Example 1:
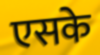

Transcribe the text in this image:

एसके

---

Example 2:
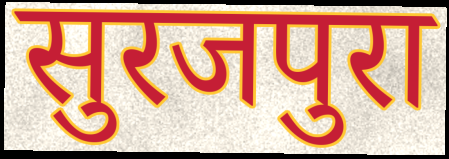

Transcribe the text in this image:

सुरजपुरा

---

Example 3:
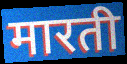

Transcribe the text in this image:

मारती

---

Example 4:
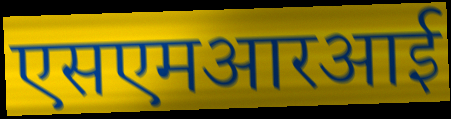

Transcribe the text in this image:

एसएमआरआई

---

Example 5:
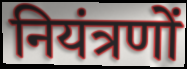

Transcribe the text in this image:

नियंत्रणों